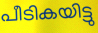
പീടികയിട്ടു